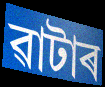
ৱাটাৰ